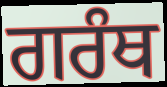
ਗਰੰਥ